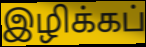
இழிக்கப்